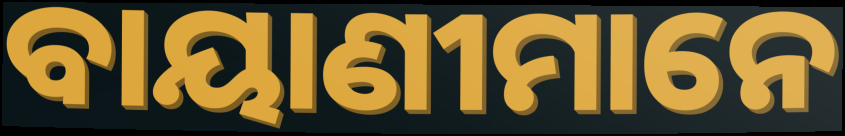
ବାୟାଣୀମାନେ